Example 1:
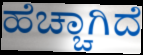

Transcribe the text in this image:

ಹೆಚ್ಚಾಗಿದೆ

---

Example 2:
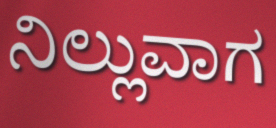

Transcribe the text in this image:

ನಿಲ್ಲುವಾಗ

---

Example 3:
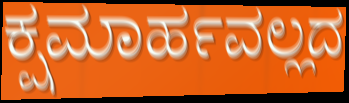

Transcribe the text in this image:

ಕ್ಷಮಾರ್ಹವಲ್ಲದ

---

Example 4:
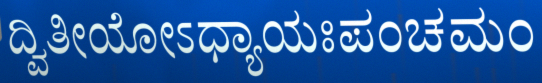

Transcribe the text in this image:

ದ್ವಿತೀಯೋಽಧ್ಯಾಯಃಪಂಚಮಂ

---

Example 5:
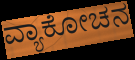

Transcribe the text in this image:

ವ್ಯಾಕೋಚನ